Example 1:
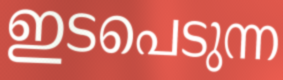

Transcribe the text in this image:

ഇടപെടുന്ന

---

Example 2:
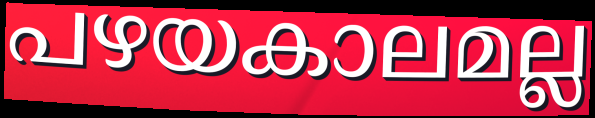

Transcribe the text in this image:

പഴയകാലമല്ല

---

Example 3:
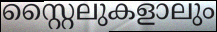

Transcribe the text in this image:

സ്റ്റൈലുകളാലും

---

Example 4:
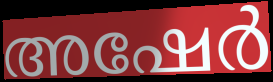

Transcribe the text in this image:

അഷേർ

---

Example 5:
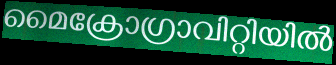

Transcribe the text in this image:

മൈക്രോഗ്രാവിറ്റിയിൽ